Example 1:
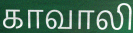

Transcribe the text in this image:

காவாலி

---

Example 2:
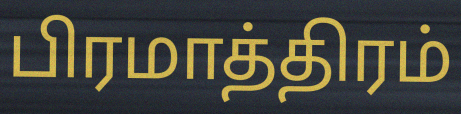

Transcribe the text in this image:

பிரமாத்திரம்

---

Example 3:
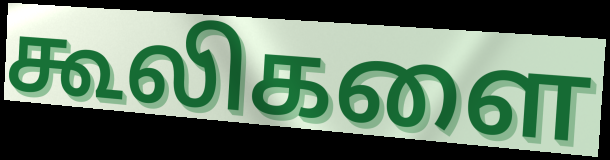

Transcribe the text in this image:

கூலிகளை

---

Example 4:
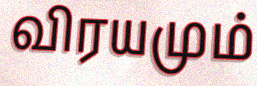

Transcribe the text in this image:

விரயமும்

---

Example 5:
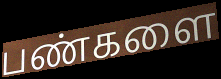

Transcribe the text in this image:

பண்களை